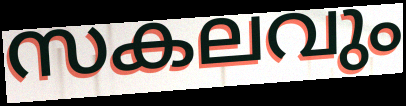
സകലവും